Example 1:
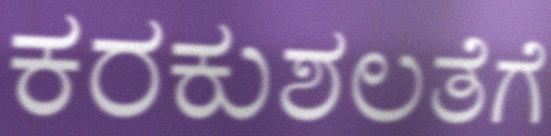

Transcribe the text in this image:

ಕರಕುಶಲತೆಗೆ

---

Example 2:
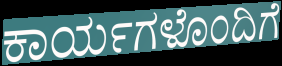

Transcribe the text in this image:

ಕಾರ್ಯಗಳೊಂದಿಗೆ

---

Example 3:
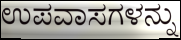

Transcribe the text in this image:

ಉಪವಾಸಗಳನ್ನು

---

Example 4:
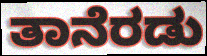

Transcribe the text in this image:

ತಾನೆರಡು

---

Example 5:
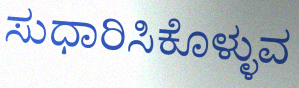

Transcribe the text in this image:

ಸುಧಾರಿಸಿಕೊಳ್ಳುವ